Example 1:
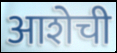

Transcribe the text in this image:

आशेची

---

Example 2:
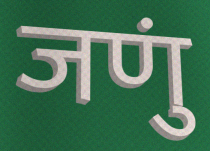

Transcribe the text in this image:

जणुं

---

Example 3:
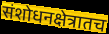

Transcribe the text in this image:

संशोधनक्षेत्रातच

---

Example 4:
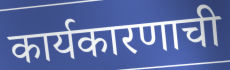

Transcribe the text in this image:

कार्यकारणाची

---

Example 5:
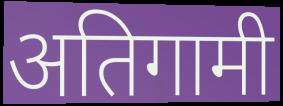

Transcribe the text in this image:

अतिगामी